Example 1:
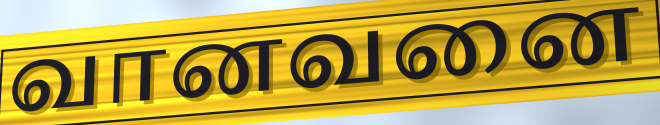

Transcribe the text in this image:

வானவனை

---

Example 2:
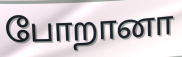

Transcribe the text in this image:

போறானா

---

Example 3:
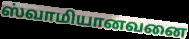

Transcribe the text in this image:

ஸ்வாமியானவனை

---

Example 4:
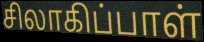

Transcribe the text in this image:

சிலாகிப்பாள்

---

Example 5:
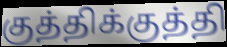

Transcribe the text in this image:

குத்திக்குத்தி